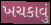
ખચકાવું